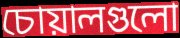
চোয়ালগুলো